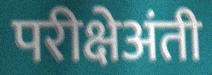
परीक्षेअंती